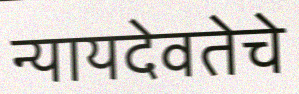
न्यायदेवतेचे